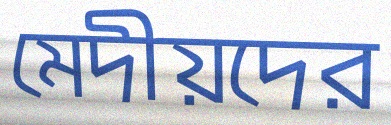
মেদীয়দের